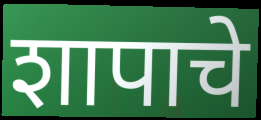
शापाचे